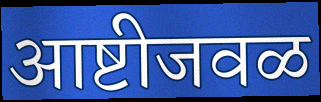
आष्टीजवळ